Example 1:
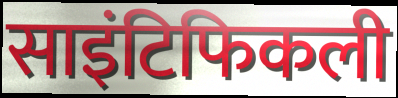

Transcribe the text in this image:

साइंटिफिकली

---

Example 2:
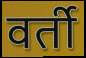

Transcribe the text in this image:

वर्ती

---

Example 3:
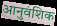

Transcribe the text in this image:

आनुवंशिक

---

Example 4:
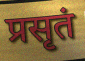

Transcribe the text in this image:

प्रसृतं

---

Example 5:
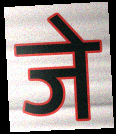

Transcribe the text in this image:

जे